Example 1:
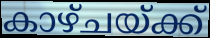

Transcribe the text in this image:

കാഴ്ചയ്ക്ക്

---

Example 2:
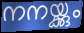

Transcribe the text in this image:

നനയ്ക്കും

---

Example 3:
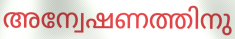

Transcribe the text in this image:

അന്വേഷണത്തിനു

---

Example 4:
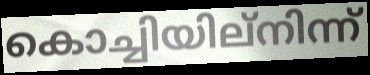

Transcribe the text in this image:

കൊച്ചിയില്നിന്ന്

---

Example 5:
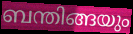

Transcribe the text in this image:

ബന്തിങ്ങയും